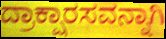
ದ್ರಾಕ್ಷಾರಸವನ್ನಾಗಿ